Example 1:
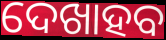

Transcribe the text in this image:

ଦେଖାହବ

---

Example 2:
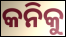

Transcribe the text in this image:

କନିକୁ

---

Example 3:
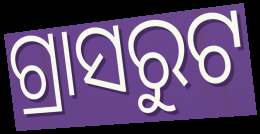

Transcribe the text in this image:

ଗ୍ରାସରୁଟ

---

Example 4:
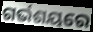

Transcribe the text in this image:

ଗର୍ଭଶୟରେ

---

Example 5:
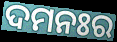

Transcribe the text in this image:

ଦମନଃର